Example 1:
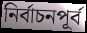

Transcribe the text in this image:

নির্বাচনপূর্ব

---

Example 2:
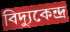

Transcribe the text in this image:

বিদ্যুকেন্দ্র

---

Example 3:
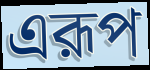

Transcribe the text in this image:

এরূপ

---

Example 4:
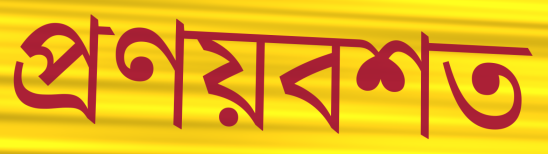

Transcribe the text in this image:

প্রণয়বশত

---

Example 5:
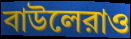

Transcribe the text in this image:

বাউলেরাও